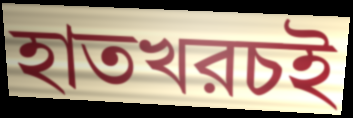
হাতখরচই